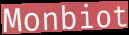
Monbiot